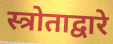
स्त्रोताद्वारे